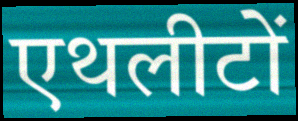
एथलीटों